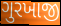
ગુરખાજી